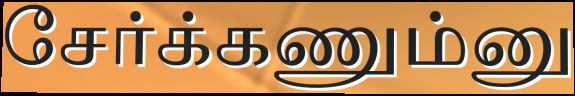
சேர்க்கணும்னு